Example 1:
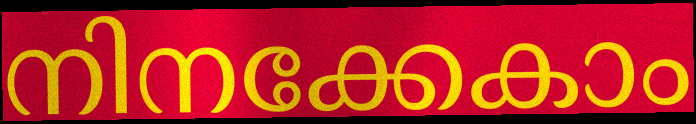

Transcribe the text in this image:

നിനക്കേകാം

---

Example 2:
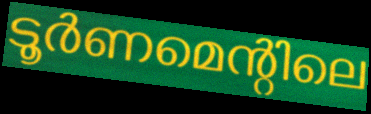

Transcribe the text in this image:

ടൂർണമെന്റിലെ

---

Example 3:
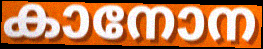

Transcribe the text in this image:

കാനോന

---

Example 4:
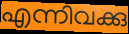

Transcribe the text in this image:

എന്നിവക്കു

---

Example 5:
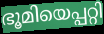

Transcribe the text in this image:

ഭൂമിയെപ്പറ്റി